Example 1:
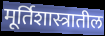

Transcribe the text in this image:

मूर्तिशास्त्रातील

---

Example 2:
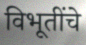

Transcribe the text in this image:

विभूतींचे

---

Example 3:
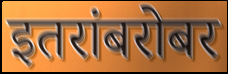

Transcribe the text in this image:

इतरांबरोबर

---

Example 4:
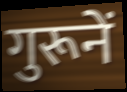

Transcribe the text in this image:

गुरूनें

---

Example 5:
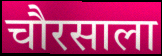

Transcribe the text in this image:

चौरसाला